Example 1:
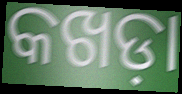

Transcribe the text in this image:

କଖଡ଼ା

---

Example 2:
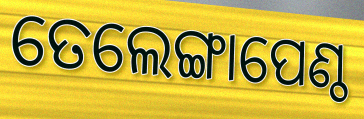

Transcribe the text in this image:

ତେଲେଙ୍ଗାପେଣ୍ଠ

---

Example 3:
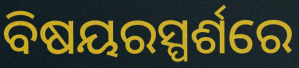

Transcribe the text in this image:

ବିଷୟରସ୍ପର୍ଶରେ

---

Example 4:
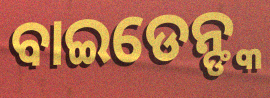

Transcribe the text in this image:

ବାଇଡେନ୍ଙ୍କ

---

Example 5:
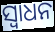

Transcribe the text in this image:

ସ୍ଵାଧନ